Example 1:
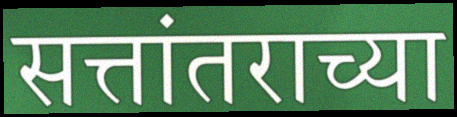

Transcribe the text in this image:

सत्तांतराच्या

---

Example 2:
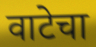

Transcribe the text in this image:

वाटेचा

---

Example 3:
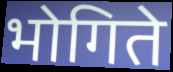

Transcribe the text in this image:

भोगिते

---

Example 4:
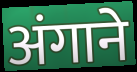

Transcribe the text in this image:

अंगाने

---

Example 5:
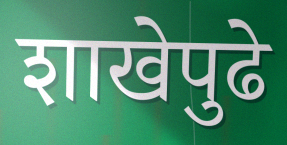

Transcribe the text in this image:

शाखेपुढे